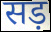
सड़